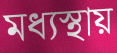
মধ্যস্থায়